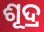
ଶୂଦ୍ର